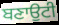
ਬਣਾਉਟੀ